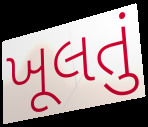
ખૂલતું